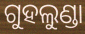
ଗୁହଲୁଣ୍ଡା